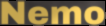
Nemo